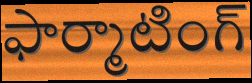
ఫార్మాటింగ్